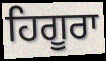
ਹਿਗੂਰਾ